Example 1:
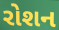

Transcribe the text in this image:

રોશન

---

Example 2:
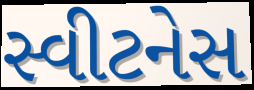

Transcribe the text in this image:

સ્વીટનેસ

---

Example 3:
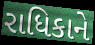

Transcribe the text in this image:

રાધિકાને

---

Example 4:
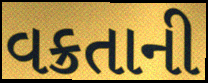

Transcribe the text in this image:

વક્રતાની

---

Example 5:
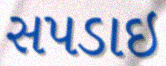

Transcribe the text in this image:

સપડાઇ